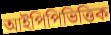
আইপিপিভিত্তিক